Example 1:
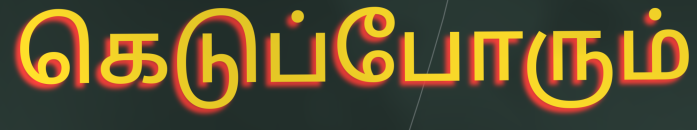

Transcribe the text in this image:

கெடுப்போரும்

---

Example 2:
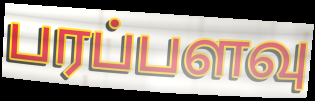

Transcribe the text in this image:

பரப்பளவு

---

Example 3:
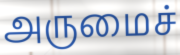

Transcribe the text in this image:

அருமைச்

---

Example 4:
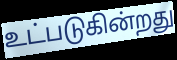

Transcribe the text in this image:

உட்படுகின்றது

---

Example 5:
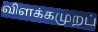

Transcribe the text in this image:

விளக்கமுறப்